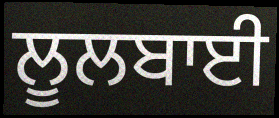
ਲੂਲਬਾਈ